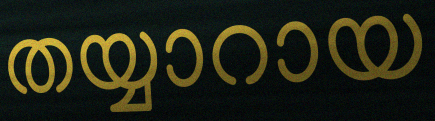
തയ്യാറായ